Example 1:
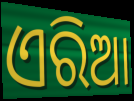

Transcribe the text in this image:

ଏରିଆ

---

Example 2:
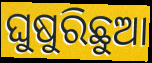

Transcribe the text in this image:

ଘୁଷୁରିଛୁଆ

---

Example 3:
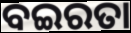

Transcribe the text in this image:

ବଇରତା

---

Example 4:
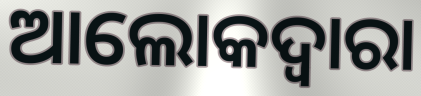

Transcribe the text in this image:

ଆଲୋକଦ୍ୱାରା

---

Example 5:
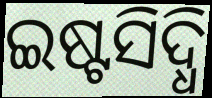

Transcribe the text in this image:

ଇଷ୍ଟସିଦ୍ଧି